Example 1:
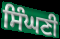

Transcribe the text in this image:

ਸਿੰਘਣੀ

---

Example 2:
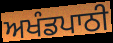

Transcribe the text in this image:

ਅਖੰਡਪਾਠੀ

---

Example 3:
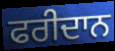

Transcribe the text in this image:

ਫਰੀਦਾਨ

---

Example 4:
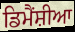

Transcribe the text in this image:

ਡਿਮੈਂਸ਼ੀਆ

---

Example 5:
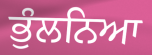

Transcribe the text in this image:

ਭੁੰਲਨਿਆ